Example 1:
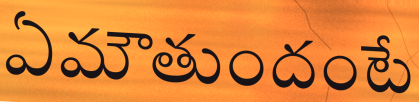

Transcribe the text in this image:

ఏమౌతుందంటే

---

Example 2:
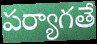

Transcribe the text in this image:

పర్యాగతే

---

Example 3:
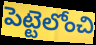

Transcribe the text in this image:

పెట్టెలోంచి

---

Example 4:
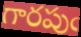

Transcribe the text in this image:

గారపుఁ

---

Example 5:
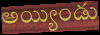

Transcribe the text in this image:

అయ్యిండు